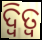
ଦ୍ୱିତ୍ୱ